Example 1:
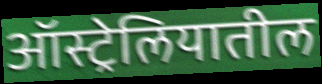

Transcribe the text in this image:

ऑस्ट्रेलियातील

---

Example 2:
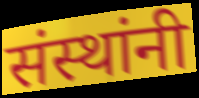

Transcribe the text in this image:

संस्थांनी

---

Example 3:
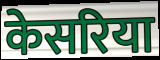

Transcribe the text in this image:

केसरिया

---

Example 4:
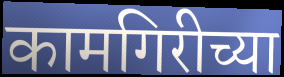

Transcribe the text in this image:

कामगिरीच्या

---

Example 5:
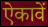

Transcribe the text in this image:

ऐकावें